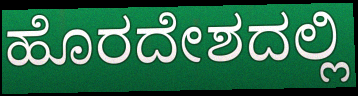
ಹೊರದೇಶದಲ್ಲಿ